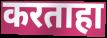
करताहा